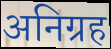
अनिग्रह